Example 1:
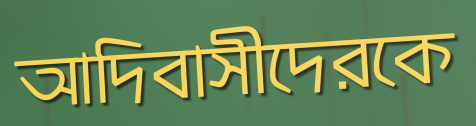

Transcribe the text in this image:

আদিবাসীদেরকে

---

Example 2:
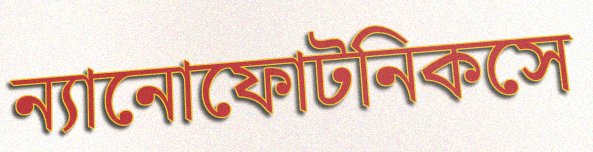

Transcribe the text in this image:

ন্যানোফোটনিকসে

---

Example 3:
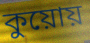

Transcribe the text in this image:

কুয়োয়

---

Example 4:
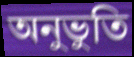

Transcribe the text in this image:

অনুভুতি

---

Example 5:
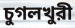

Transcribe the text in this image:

চুগলখুরী